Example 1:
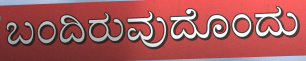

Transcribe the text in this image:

ಬಂದಿರುವುದೊಂದು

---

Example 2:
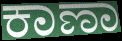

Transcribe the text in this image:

ಕಾಣಾ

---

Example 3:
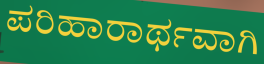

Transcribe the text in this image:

ಪರಿಹಾರಾರ್ಥವಾಗಿ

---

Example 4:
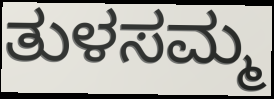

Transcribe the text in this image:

ತುಳಸಮ್ಮ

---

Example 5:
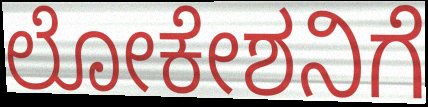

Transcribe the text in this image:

ಲೋಕೇಶನಿಗೆ